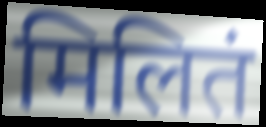
मिलितं